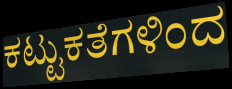
ಕಟ್ಟುಕತೆಗಳಿಂದ